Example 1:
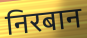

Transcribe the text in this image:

निरबान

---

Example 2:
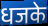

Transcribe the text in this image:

धजके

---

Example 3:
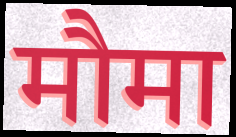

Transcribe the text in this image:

मौमा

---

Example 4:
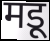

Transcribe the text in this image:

मडू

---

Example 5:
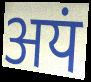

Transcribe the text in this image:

अयं